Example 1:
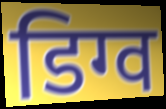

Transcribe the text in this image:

डिग्व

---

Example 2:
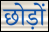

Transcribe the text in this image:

छोड़ों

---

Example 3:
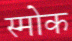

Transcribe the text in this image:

स्मोक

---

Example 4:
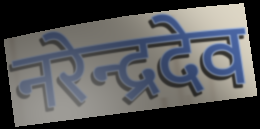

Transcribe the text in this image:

नरेन्द्रदेव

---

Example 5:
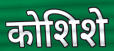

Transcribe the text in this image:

कोशिशे